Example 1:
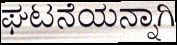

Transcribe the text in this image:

ಘಟನೆಯನ್ನಾಗಿ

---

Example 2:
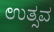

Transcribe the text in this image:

ಉತ್ಸವ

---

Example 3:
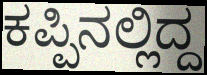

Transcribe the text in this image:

ಕಪ್ಪಿನಲ್ಲಿದ್ದ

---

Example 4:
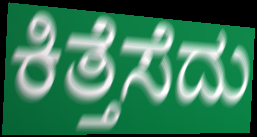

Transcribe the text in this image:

ಕಿತ್ತೆಸೆದು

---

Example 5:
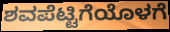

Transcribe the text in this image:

ಶವಪೆಟ್ಟಿಗೆಯೊಳಗೆ